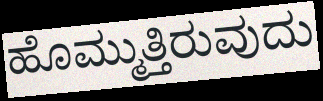
ಹೊಮ್ಮುತ್ತಿರುವುದು